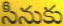
సీనుకు